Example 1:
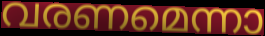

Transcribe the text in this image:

വരണമെന്നാ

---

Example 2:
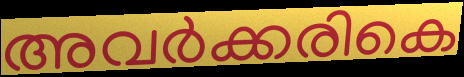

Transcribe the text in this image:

അവർക്കരികെ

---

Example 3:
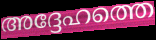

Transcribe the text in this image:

അദ്ദേഹത്തെ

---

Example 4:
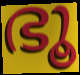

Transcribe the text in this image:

ഭൂ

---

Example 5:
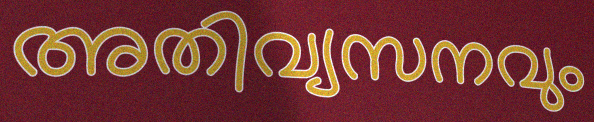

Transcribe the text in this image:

അതിവ്യസനവും